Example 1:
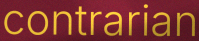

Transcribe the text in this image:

contrarian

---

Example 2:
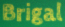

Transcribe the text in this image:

Brigal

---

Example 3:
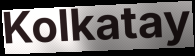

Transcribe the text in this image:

Kolkatay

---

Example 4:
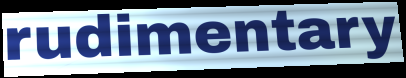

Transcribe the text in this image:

rudimentary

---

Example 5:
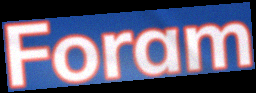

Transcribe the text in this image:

Foram